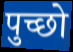
पुच्छो